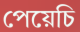
পেয়েচি